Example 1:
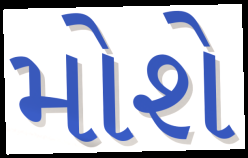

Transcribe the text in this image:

મોશે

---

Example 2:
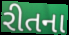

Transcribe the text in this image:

રીતના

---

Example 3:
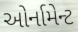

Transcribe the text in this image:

ઓર્નામેન્ટ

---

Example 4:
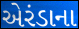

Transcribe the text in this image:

એરંડાના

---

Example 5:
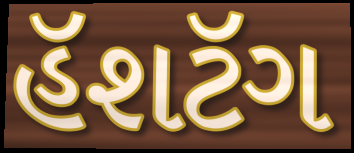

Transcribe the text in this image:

હૅશટૅગ